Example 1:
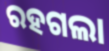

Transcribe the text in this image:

ରହଗଲା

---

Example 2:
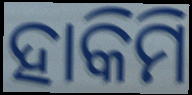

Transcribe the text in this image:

ହାକିମି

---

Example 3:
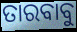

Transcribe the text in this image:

ତାରବାବୁ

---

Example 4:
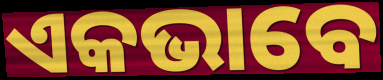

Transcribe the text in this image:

ଏକଭାବେ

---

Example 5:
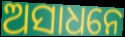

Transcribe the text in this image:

ଅସାଧନେ